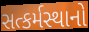
સત્કર્મસ્થાનો